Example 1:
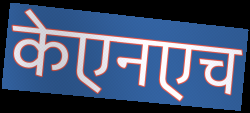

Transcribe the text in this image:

केएनएच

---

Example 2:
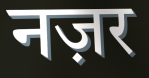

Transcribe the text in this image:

नज़र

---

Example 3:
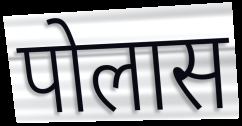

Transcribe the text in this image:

पोलास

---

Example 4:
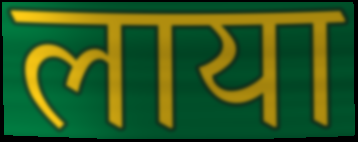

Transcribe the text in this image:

लाया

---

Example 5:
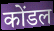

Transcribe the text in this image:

कोंडल